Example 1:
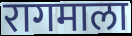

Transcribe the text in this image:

रागमाला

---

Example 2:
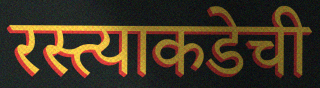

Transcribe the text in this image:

रस्त्याकडेची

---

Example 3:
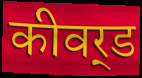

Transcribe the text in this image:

कीवर्ड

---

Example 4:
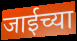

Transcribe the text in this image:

जाईच्या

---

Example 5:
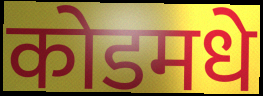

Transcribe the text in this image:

कोडमधे